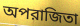
অপরাজিতা